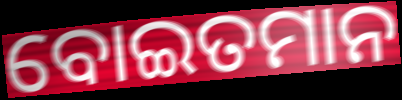
ବୋଇତମାନ